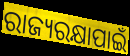
ରାଜ୍ୟରକ୍ଷାପାଇଁ